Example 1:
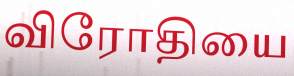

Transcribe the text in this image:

விரோதியை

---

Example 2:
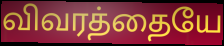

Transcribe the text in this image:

விவரத்தையே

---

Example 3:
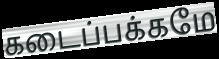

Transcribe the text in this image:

கடைப்பக்கமே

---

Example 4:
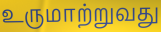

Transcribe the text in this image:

உருமாற்றுவது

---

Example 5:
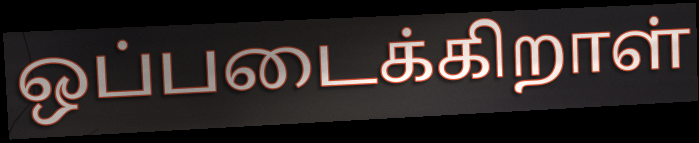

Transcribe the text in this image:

ஒப்படைக்கிறாள்